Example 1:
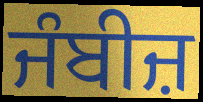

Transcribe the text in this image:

ਜੰਬੀਜ਼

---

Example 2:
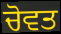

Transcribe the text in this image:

ਚੋਵਤ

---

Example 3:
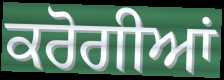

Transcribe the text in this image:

ਕਰੋਗੀਆਂ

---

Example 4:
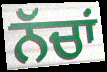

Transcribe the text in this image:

ਨੱਚਾਂ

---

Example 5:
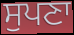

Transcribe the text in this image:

ਸੁਪਣਾ